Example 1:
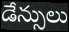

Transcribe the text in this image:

డేన్సులు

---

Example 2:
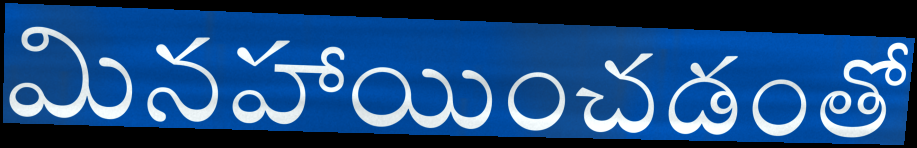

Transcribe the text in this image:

మినహాయించడంతో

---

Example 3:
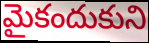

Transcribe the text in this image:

మైకందుకుని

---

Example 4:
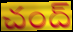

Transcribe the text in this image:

చంద్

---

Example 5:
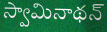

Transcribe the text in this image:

స్వామినాథన్